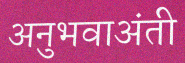
अनुभवाअंती